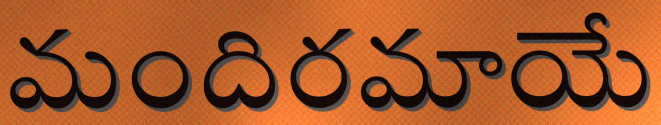
మందిరమాయే